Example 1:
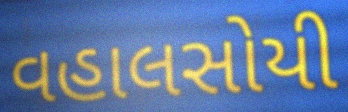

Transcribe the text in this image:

વહાલસોયી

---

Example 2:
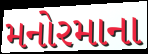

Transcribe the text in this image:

મનોરમાના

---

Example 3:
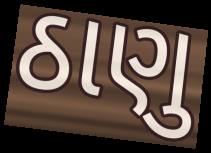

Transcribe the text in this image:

ઠાણુ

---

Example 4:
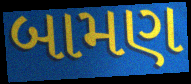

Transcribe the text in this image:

બામણ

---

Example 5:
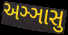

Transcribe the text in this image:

અઞ્ઞાસુ